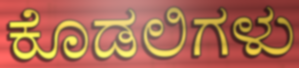
ಕೊಡಲಿಗಳು